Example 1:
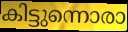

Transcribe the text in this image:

കിട്ടുന്നൊരാ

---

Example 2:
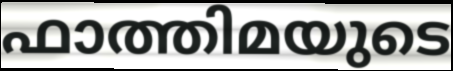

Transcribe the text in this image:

ഫാത്തിമയുടെ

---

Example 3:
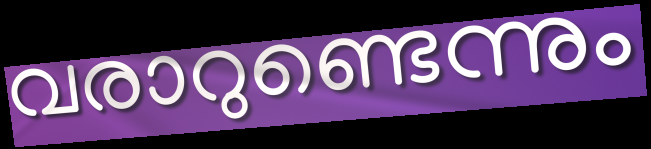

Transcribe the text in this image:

വരാറുണ്ടെന്നും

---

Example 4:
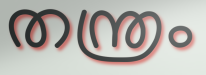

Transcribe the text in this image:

തന്ത്രം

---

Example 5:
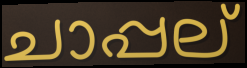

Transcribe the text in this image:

ചാപ്പല്